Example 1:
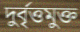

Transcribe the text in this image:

দুর্বৃত্তমুক্ত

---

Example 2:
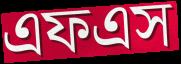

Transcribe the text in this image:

এফএস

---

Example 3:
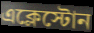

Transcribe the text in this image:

এক্লেস্টোন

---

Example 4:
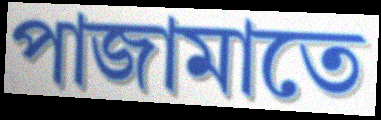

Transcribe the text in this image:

পাজামাতে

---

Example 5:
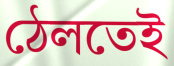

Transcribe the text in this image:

ঠেলতেই